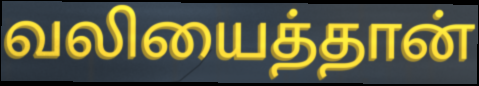
வலியைத்தான்